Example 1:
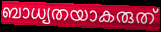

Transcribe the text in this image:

ബാധ്യതയാകരുത്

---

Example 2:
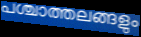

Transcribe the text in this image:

പശ്ചാത്തലങ്ങളും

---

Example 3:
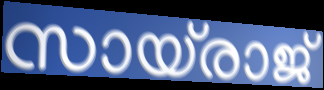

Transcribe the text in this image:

സായ്രാജ്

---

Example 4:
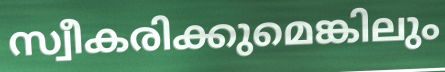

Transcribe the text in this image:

സ്വീകരിക്കുമെങ്കിലും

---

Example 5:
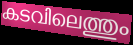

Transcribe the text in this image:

കടവിലെത്തും